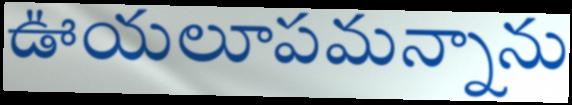
ఊయలూపమన్నాను